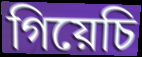
গিয়েচি